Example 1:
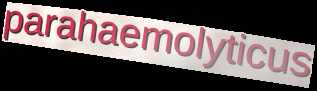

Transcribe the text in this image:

parahaemolyticus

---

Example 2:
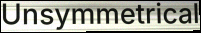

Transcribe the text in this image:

Unsymmetrical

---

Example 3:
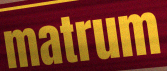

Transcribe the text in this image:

matrum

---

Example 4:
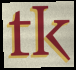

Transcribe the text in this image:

tk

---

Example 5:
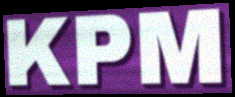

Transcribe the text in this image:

KPM